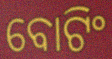
ବୋଟିଂ